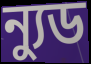
ন্যুড